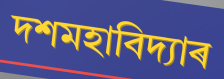
দশমহাবিদ্যাৰ